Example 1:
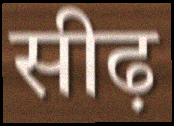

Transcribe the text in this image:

सीढ़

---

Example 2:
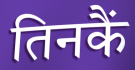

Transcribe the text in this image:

तिनकैं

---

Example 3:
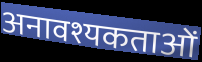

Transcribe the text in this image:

अनावश्यकताओं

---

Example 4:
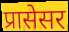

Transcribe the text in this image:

प्रासेसर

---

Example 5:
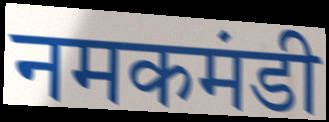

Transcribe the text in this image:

नमकमंडी